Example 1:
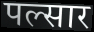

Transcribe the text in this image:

पल्सार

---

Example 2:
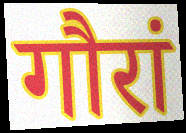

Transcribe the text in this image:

गौरां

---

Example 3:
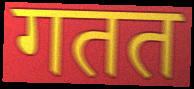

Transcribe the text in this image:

गतत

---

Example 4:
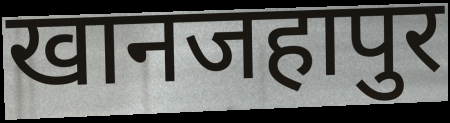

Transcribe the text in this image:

खानजहापुर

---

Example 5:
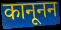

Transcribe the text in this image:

कानूनन